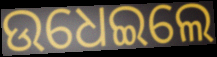
ଉଧେଇଲେ